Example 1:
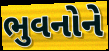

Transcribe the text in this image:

ભુવનોને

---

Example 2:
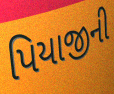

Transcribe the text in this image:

પિયાજીની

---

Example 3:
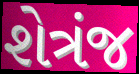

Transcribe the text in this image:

શેત્રંજ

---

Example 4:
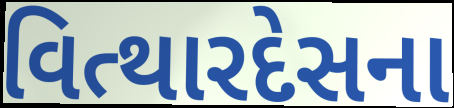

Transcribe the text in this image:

વિત્થારદેસના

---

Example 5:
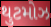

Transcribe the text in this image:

થુટમોઝ